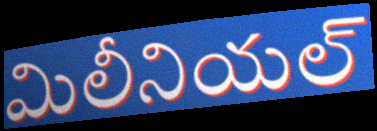
మిలీనియల్